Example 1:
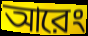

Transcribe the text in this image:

আরেং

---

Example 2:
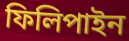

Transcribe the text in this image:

ফিলিপাইন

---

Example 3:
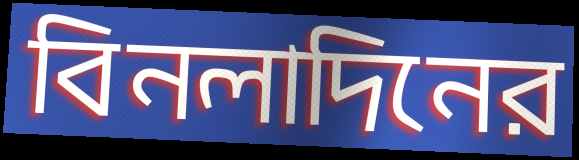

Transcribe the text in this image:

বিনলাদিনের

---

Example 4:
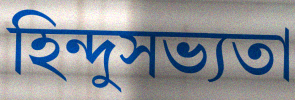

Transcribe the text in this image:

হিন্দুসভ্যতা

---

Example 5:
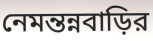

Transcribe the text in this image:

নেমন্তন্নবাড়ির